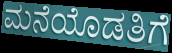
ಮನೆಯೊಡತಿಗೆ